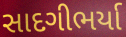
સાદગીભર્યા